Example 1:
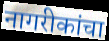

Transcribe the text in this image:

नागरीकांचा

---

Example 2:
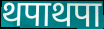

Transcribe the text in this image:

थपाथपा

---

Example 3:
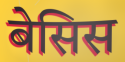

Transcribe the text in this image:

बेसिस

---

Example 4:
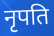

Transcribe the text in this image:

नृपति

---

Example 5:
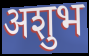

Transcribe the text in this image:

अशुभ